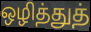
ஒழித்துத்